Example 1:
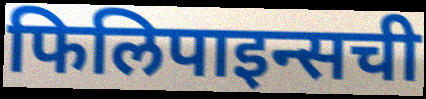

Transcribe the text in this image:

फिलिपाइन्सची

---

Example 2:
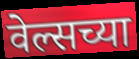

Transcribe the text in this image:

वेल्सच्या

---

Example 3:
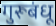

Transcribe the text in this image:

गुरूबंधू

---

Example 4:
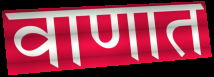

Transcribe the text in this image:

वाणात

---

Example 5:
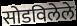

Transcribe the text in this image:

सोडविलेले